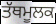
ਤੱਥਮੂਲਕ